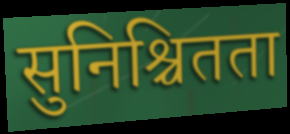
सुनिश्चितता